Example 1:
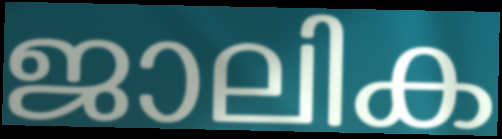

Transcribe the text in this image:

ജാലിക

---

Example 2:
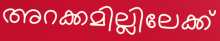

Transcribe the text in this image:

അറക്കമില്ലിലേക്ക്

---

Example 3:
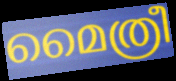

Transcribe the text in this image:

മൈത്രീ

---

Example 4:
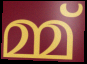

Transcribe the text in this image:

മ്മ്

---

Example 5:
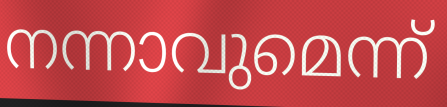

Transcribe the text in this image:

നന്നാവുമെന്ന്